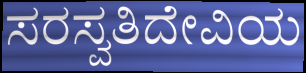
ಸರಸ್ವತಿದೇವಿಯ